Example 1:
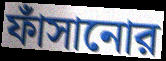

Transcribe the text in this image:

ফাঁসানোর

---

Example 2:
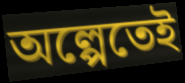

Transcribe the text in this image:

অল্পেতেই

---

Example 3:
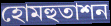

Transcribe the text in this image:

হোমহুতাশন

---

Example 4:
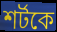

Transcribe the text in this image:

শর্টকে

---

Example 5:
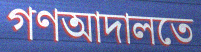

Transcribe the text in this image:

গণআদালতে